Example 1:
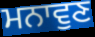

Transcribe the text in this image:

ਮਨਾਵੁਣ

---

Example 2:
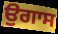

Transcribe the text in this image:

ਉਗਾਸ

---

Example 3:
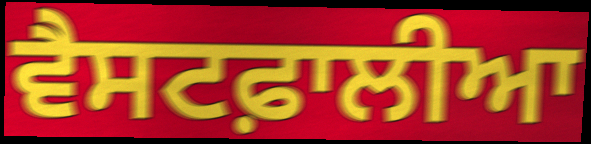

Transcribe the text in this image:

ਵੈਸਟਫ਼ਾਲੀਆ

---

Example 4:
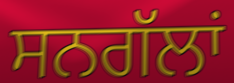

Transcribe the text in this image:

ਸਨਗੱਲਾਂ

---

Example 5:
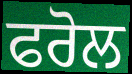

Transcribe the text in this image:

ਫਰੋਲ